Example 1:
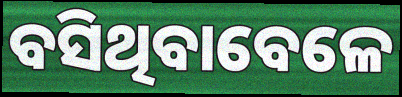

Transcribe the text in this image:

ବସିଥିବାବେଳେ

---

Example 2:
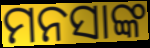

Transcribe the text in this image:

ମନସାଙ୍କ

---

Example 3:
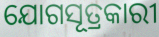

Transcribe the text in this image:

ଯୋଗସୂତ୍ରକାରୀ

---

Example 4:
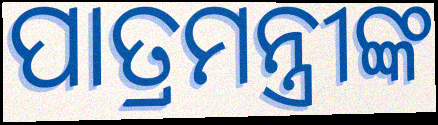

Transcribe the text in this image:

ପାତ୍ରମନ୍ତ୍ରୀଙ୍କ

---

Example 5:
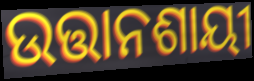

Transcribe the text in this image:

ଉତ୍ତାନଶାୟୀ